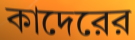
কাদেরের